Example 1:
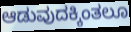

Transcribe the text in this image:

ಆಡುವುದಕ್ಕಿಂತಲೂ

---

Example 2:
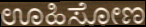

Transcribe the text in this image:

ಊಹಿಸೋಣ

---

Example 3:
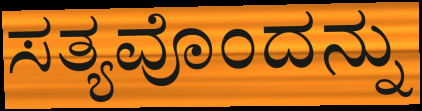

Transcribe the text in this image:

ಸತ್ಯವೊಂದನ್ನು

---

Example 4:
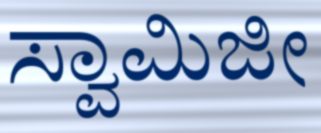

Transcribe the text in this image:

ಸ್ವಾಮಿಜೀ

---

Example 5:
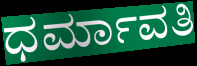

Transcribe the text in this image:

ಧರ್ಮಾವತಿ